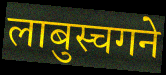
लाबुस्चगने